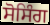
ਸੋਸਿੰਗ